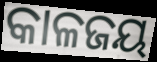
କାଳଜୟ